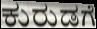
ಕುರುಡಗೆ